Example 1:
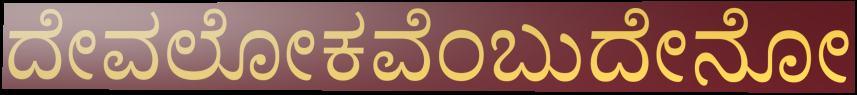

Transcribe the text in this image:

ದೇವಲೋಕವೆಂಬುದೇನೋ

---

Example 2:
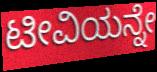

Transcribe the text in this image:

ಟೀವಿಯನ್ನೇ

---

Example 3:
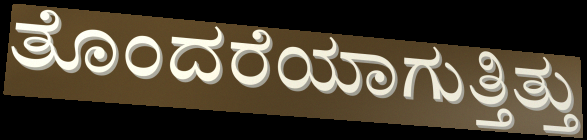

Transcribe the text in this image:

ತೊಂದರೆಯಾಗುತ್ತಿತ್ತು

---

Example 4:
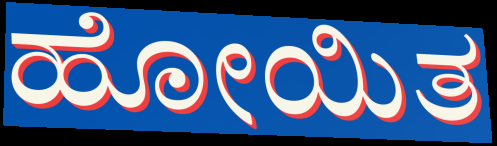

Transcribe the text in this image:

ಹೋಯಿತ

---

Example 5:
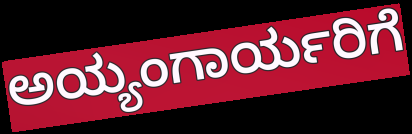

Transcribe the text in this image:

ಅಯ್ಯಂಗಾರ್ಯರಿಗೆ